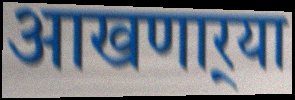
आखणार्या